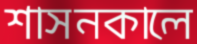
শাসনকালে